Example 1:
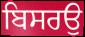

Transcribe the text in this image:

ਬਿਸਰਉ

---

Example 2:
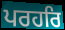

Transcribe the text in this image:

ਪਰਹਰਿ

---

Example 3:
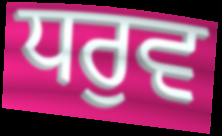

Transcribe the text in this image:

ਧਰੁਵ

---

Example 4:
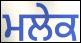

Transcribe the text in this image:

ਮਲੇਕ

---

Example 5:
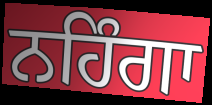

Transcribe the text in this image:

ਨਹਿੰਗਾ